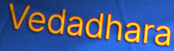
Vedadhara